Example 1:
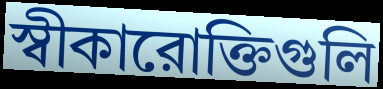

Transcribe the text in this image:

স্বীকারোক্তিগুলি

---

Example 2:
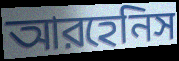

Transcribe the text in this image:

আরহেনিস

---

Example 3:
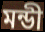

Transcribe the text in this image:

মন্ডী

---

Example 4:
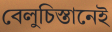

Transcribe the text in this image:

বেলুচিস্তানেই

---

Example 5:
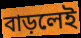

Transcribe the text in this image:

বাড়লেই